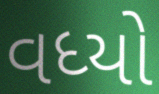
વધ્યો